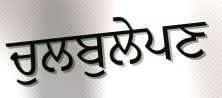
ਚੁਲਬੁਲੇਪਣ